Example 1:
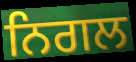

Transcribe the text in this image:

ਨਿਗਲ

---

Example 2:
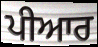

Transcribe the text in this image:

ਪੀਆਰ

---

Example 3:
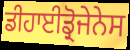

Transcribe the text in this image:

ਡੀਹਾਈਡ੍ਰੋਜੇਨੇਸ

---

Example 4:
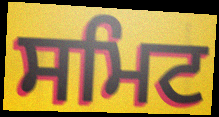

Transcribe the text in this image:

ਸਮਿਟ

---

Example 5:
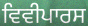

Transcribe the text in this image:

ਵਿਵੀਪਾਰਸ